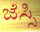
ಜೆಸ್ಸಿ